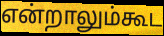
என்றாலும்கூட